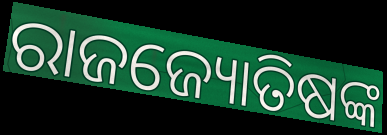
ରାଜଜ୍ୟୋତିଷଙ୍କ